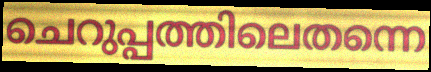
ചെറുപ്പത്തിലെതന്നെ